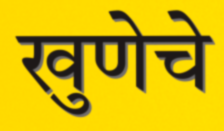
खुणेचे